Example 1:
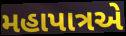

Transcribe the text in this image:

મહાપાત્રએ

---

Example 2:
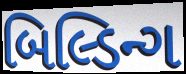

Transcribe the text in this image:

બિલ્ડિન્ગ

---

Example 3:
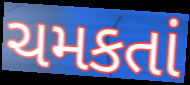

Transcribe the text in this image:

ચમકતાં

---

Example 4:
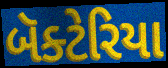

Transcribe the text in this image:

બૅક્ટેરિયા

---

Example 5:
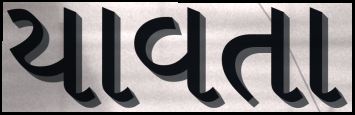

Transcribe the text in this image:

યાવતા